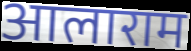
आलाराम